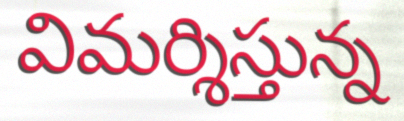
విమర్శిస్తున్న